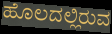
ಹೊಲದಲ್ಲಿರುವ